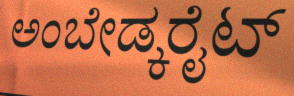
ಅಂಬೇಡ್ಕರೈಟ್